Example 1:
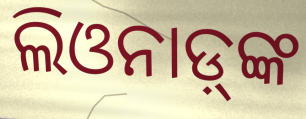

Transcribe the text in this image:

ଲିଓନାଡ଼୍‌ଙ୍କ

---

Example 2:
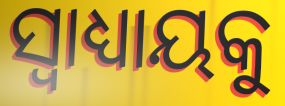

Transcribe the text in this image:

ସ୍ୱାଧ୍ୟାୟକୁ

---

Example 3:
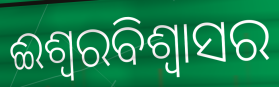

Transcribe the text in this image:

ଈଶ୍ୱରବିଶ୍ୱାସର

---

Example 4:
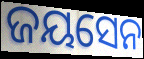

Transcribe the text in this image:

ଜୟସେନ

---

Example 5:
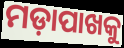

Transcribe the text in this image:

ମଡ଼ାପାଖକୁ